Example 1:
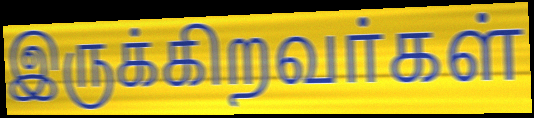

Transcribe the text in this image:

இருக்கிறவர்கள்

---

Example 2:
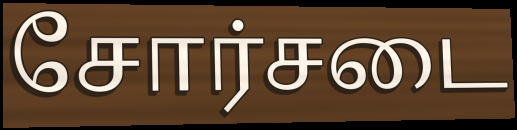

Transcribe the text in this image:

சோர்சடை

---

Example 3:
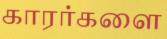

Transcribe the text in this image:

காரர்களை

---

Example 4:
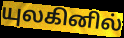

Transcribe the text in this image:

யுலகினில்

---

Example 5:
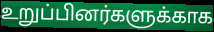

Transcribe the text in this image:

உறுப்பினர்களுக்காக